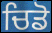
ਚਿਡੋ